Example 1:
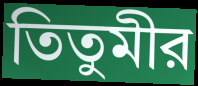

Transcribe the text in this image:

তিতুমীর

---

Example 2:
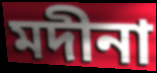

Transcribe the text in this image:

মদীনা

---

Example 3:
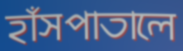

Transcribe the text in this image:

হাঁসপাতালে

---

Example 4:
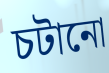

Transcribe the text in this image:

চটানো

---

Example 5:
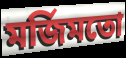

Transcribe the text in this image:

মর্জিমতো